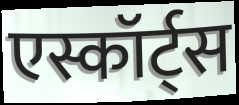
एस्कॉर्ट्स